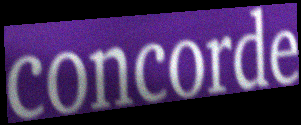
concorde